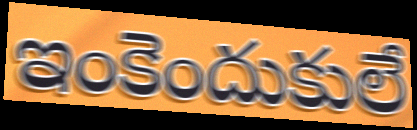
ఇంకెందుకులే